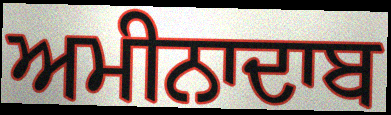
ਅਮੀਨਾਦਾਬ